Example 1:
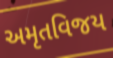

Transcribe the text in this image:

અમૃતવિજય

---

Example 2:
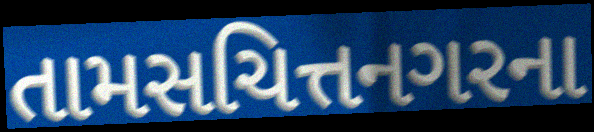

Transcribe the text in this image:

તામસચિત્તનગરના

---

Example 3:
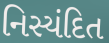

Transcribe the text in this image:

નિસ્યંદિત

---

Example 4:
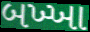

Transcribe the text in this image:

બખ્ખા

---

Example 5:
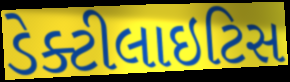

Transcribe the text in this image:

ડેક્ટીલાઇટિસ